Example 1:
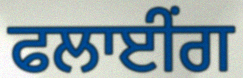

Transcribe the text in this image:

ਫਲਾਈਂਗ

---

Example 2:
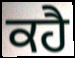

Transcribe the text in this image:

ਕਹੈ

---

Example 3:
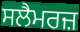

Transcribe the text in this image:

ਸਲੈਮਰਜ਼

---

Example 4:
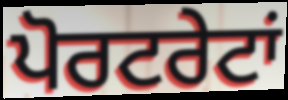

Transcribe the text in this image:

ਪੋਰਟਰੇਟਾਂ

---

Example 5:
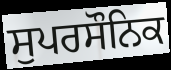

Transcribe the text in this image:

ਸੁਪਰਸੌਨਿਕ